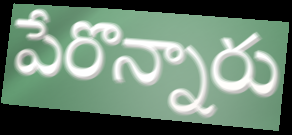
పేరొన్నారు